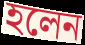
হলেন